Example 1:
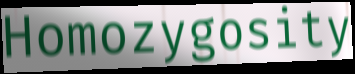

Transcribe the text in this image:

Homozygosity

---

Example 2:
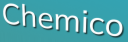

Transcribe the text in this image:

Chemico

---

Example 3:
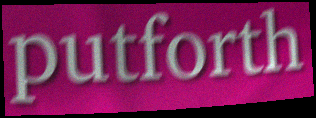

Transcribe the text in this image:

putforth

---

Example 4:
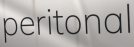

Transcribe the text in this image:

peritonal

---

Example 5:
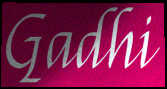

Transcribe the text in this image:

Gadhi